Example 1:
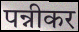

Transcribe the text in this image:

पन्नीकर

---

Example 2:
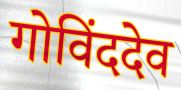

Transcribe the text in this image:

गोविंददेव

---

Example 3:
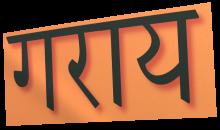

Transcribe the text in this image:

गराय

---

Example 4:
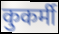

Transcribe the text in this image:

कुकर्मी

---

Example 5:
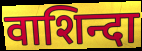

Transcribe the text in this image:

वाशिन्दा